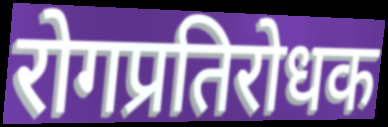
रोगप्रतिरोधक